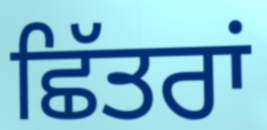
ਛਿੱਤਰਾਂ